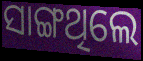
ସାଙ୍ଗଥିଲେ